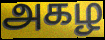
அகழ